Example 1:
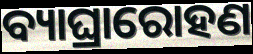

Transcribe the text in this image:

ବ୍ୟାଘ୍ରାରୋହଣ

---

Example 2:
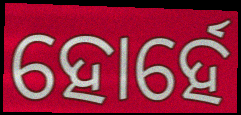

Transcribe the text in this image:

ହୋର୍ହେ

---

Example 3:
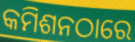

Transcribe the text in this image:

କମିଶନଠାରେ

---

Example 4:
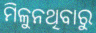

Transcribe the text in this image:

ମିଳୁନଥିବାରୁ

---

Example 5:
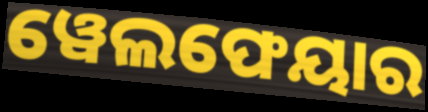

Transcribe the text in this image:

ୱେଲଫେୟାର